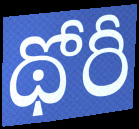
థోరీ